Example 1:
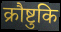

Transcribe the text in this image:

क्रौष्टुकि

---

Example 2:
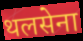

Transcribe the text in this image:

थलसेना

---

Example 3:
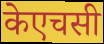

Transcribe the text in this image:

केएचसी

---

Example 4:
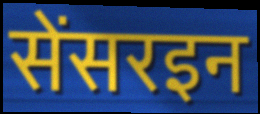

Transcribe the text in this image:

सेंसरइन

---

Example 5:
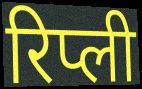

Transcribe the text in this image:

रिप्ली